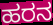
ಹರನ